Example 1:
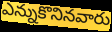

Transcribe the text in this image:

ఎన్నుకొనినవారు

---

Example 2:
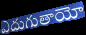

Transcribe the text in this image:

ఎదుగుతాయో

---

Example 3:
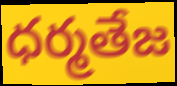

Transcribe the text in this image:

ధర్మతేజ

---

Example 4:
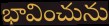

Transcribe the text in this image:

భావించును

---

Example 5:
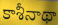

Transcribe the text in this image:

కాశీనాథా